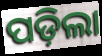
ପଡ଼ିଲା